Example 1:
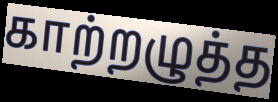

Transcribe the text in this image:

காற்றழுத்த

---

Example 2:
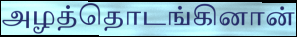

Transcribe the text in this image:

அழத்தொடங்கினான்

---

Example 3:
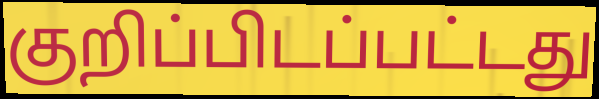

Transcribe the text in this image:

குறிப்பிடப்பட்டது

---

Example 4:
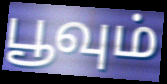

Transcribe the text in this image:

பூவும்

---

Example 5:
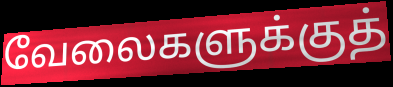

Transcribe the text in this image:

வேலைகளுக்குத்